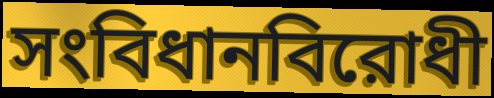
সংবিধানবিরোধী